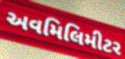
અવમિલિમીટર